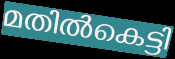
മതിൽകെട്ടി